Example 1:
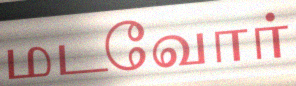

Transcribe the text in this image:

மடவோர்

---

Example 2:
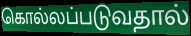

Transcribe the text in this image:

கொல்லப்படுவதால்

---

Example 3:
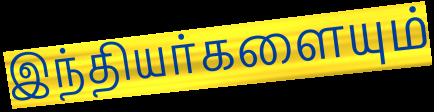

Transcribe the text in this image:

இந்தியர்களையும்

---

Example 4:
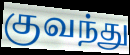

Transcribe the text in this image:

குவந்து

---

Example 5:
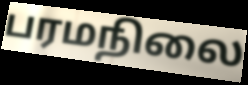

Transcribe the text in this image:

பரமநிலை